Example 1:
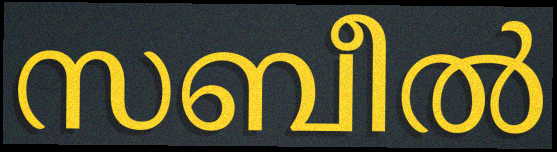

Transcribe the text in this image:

സബീൽ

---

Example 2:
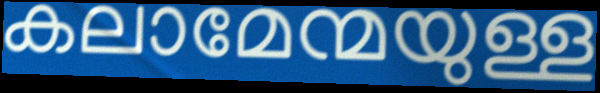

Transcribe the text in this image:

കലാമേന്മയുള്ള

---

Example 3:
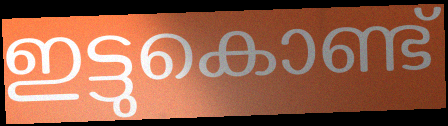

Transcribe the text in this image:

ഇട്ടുകൊണ്ട്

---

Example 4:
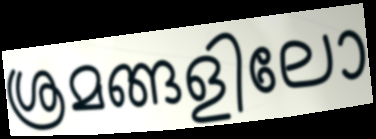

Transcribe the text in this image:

ശ്രമങ്ങളിലോ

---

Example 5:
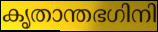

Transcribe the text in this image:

കൃതാന്തഭഗിനി